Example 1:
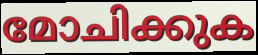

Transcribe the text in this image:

മോചിക്കുക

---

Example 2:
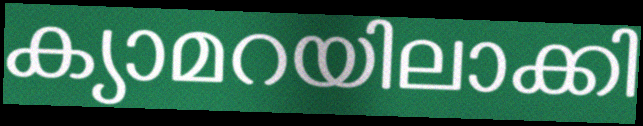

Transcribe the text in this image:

ക്യാമറയിലാക്കി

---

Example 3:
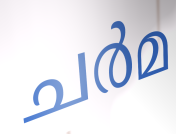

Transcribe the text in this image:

ചർമ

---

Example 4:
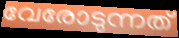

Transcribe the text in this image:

വേരോടുന്നത്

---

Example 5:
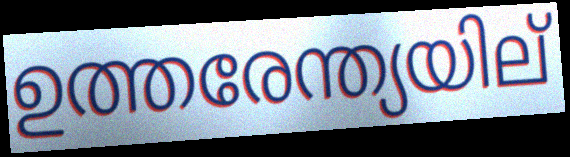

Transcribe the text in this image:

ഉത്തരേന്ത്യയില്